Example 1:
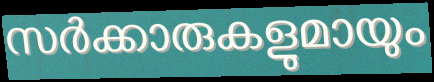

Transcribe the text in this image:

സർക്കാരുകളുമായും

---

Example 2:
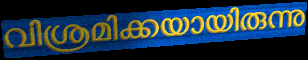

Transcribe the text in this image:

വിശ്രമിക്കയായിരുന്നു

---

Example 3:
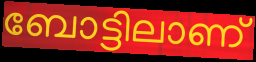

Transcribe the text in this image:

ബോട്ടിലാണ്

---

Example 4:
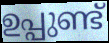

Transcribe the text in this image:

ഉപ്പുണ്ട്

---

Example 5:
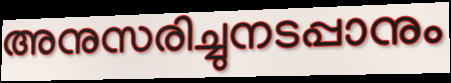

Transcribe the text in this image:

അനുസരിച്ചുനടപ്പാനും